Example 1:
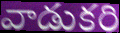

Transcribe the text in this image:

వాడుకరి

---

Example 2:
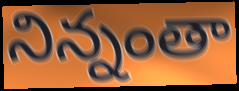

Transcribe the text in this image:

నిన్నంతా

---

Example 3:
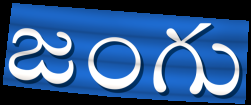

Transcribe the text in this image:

జంగు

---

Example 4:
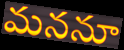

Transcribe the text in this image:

మననూ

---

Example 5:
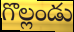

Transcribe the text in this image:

గొల్లండు